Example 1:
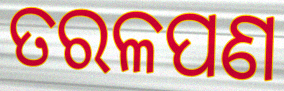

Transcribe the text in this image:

ତରଳପଣ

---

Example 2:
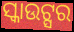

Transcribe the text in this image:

ସ୍କାଉଟ୍ସର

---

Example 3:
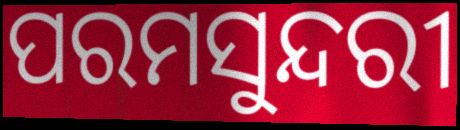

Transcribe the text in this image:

ପରମସୁନ୍ଦରୀ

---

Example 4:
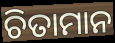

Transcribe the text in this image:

ଚିତାମାନ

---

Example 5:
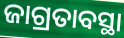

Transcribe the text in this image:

ଜାଗ୍ରତାବସ୍ଥା